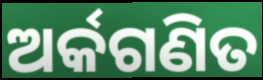
ଅର୍କଗଣିତ